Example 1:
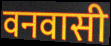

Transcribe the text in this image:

वनवासी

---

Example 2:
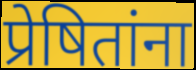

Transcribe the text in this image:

प्रेषितांना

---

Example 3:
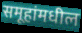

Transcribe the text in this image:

समूहांमधील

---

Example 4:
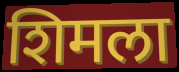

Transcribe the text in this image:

शिमला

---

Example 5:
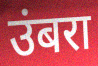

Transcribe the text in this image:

उंबरा